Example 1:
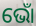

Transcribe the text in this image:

ଭୋଁ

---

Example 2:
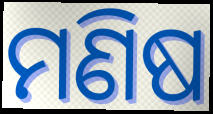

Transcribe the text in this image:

ମଣିଷ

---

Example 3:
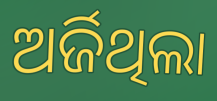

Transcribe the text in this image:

ଅର୍ଜିଥିଲା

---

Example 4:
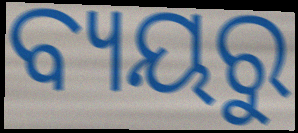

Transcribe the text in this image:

ବ୍ୟୟରୁ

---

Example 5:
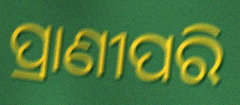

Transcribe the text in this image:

ପ୍ରାଣୀପରି